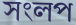
সংলপ